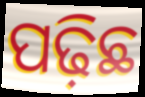
ପଢ଼ିଛ